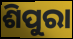
ଶିପୁରା